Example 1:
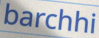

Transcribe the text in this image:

barchhi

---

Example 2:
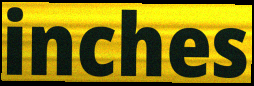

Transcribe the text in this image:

inches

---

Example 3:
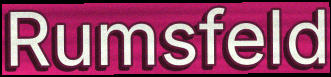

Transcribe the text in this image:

Rumsfeld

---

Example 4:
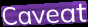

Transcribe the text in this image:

Caveat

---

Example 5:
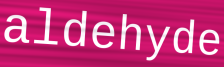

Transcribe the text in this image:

aldehyde